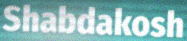
Shabdakosh